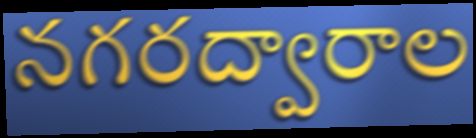
నగరద్వారాల